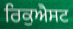
ਰਿਕੁਐਸਟ